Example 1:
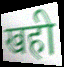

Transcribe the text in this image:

खही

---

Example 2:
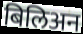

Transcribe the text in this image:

बिलिअन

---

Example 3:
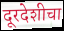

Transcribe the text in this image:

दूरदेशीचा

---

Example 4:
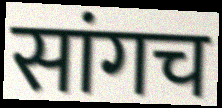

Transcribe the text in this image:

सांगच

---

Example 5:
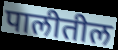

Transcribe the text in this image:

पालीतील